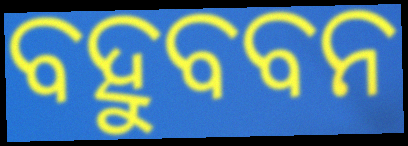
ବହୁବବନ